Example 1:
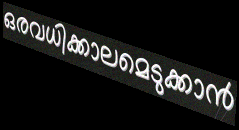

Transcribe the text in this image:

ഒരവധിക്കാലമെടുക്കാൻ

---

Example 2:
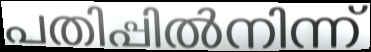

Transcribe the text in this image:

പതിപ്പിൽനിന്ന്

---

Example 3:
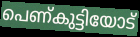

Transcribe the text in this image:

പെണ്കുട്ടിയോട്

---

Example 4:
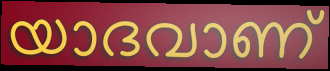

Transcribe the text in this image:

യാദവാണ്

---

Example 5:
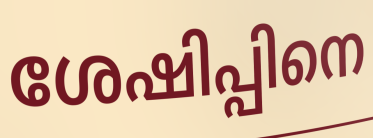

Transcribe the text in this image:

ശേഷിപ്പിനെ